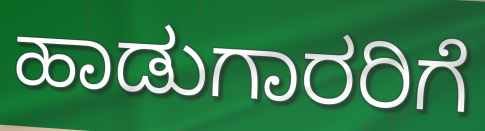
ಹಾಡುಗಾರರಿಗೆ